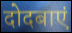
दोदबाएं